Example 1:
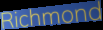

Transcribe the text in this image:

Richmond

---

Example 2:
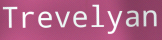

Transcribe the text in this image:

Trevelyan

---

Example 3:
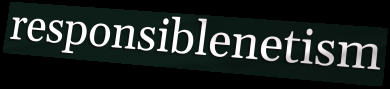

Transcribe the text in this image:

responsiblenetism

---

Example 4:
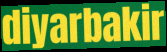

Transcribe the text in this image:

diyarbakir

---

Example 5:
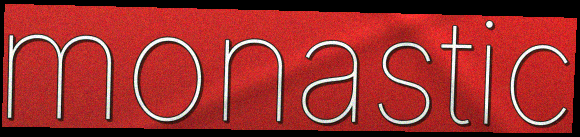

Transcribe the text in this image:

monastic